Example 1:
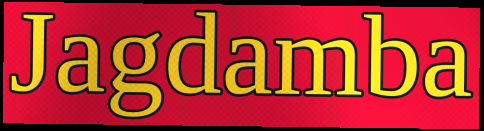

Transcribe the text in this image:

Jagdamba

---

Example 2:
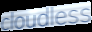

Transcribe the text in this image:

cloudless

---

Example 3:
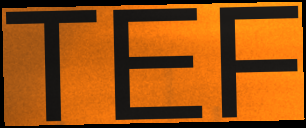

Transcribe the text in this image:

TEF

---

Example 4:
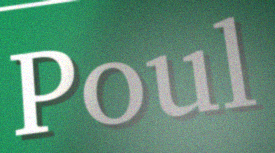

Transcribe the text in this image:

Poul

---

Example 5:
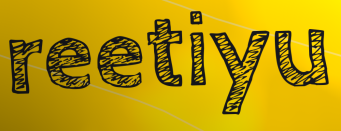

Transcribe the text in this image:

reetiyu